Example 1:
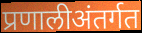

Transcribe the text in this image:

प्रणालीअंतर्गत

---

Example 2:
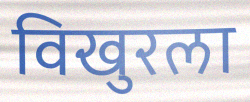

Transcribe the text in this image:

विखुरला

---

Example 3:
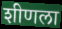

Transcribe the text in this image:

शीणला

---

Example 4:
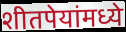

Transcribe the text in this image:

शीतपेयांमध्ये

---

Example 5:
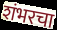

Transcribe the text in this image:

शंभरचा